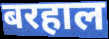
बरहाल